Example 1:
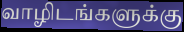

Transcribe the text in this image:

வாழிடங்களுக்கு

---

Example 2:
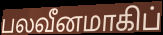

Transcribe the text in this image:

பலவீனமாகிப்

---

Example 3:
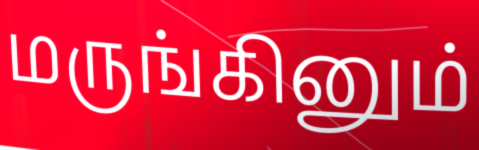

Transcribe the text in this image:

மருங்கினும்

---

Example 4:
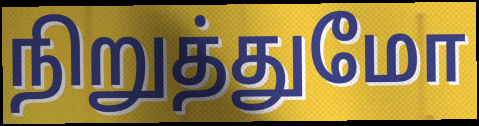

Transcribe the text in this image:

நிறுத்துமோ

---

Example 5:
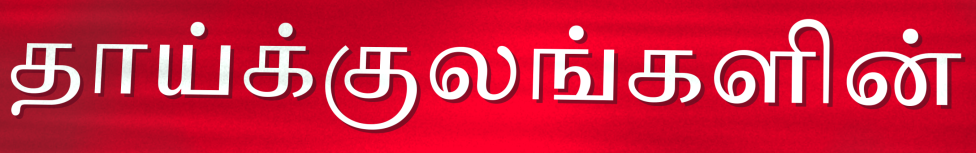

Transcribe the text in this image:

தாய்க்குலங்களின்